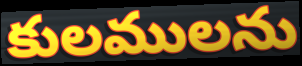
కులములను